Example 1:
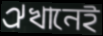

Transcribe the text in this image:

ঐখানেই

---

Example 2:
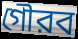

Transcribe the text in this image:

গৌরব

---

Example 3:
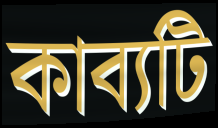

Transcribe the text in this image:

কাব্যটি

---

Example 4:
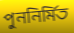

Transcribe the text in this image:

পুননির্মিত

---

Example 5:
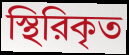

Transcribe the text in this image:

স্থিরিকৃত